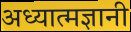
अध्यात्मज्ञानी